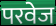
परवेज